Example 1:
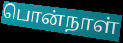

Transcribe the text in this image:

பொன்நாள்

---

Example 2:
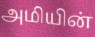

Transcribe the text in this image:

அமியின்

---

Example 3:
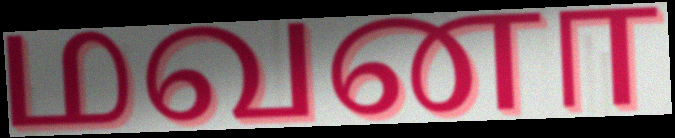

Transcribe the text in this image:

மவனா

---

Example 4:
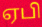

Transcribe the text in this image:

ஏபி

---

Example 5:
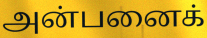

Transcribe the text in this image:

அன்பனைக்